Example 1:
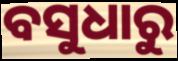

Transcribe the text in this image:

ବସୁଧାରୁ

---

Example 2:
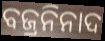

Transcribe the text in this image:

ବଜ୍ରନିନାଦ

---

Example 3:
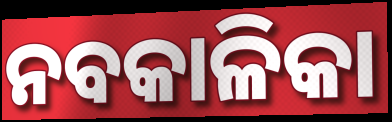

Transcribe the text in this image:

ନବକାଳିକା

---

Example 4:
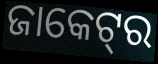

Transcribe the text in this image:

ଜାକେଟ୍‌ର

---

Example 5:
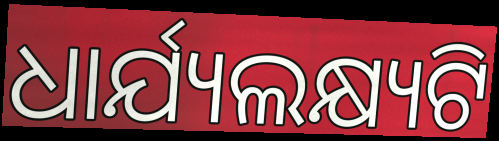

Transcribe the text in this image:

ଧାର୍ଯ୍ୟଲକ୍ଷ୍ୟଟି